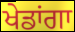
ਖੇਡਾਂਗਾ